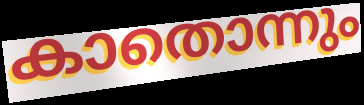
കാതൊന്നും